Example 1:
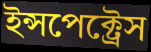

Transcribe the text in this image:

ইন্সপেক্ট্রেস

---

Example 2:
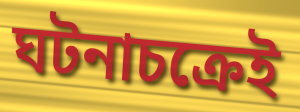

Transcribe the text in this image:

ঘটনাচক্রেই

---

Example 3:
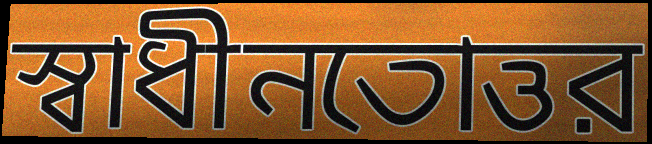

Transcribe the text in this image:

স্বাধীনতোত্তর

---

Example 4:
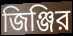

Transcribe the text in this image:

জিঞ্জির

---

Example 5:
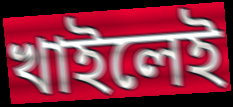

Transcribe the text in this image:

খাইলেই